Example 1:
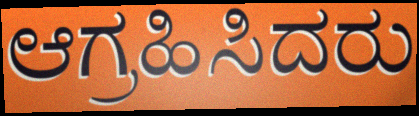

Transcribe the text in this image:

ಆಗ್ರಹಿಸಿದರು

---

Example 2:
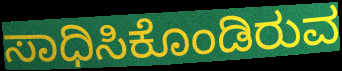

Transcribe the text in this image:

ಸಾಧಿಸಿಕೊಂಡಿರುವ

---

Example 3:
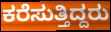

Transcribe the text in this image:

ಕರೆಸುತ್ತಿದ್ದರು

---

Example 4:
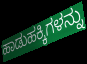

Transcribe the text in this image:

ಹಾಡುಹಕ್ಕಿಗಳನ್ನು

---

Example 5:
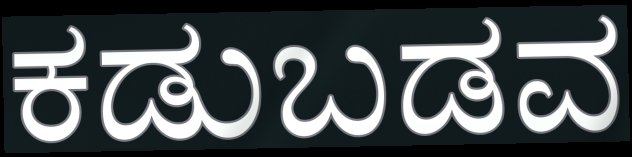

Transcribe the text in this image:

ಕಡುಬಡವ